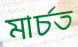
মাৰ্চত